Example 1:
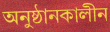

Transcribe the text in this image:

অনুষ্ঠানকালীন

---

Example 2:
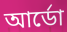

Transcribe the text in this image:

আর্ডো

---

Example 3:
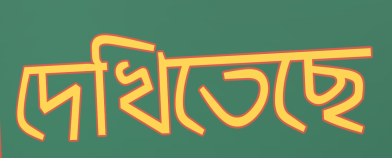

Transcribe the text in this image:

দেখিতেছে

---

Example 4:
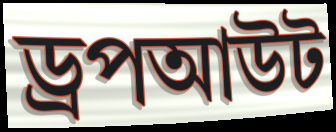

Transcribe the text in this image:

ড্রপআউট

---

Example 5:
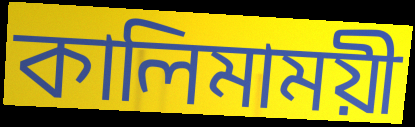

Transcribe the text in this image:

কালিমাময়ী